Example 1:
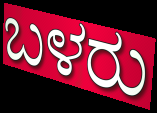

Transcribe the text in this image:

ಬಳರು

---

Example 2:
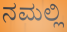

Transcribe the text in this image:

ನಮಲ್ಲಿ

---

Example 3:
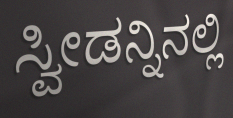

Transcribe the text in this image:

ಸ್ವೀಡನ್ನಿನಲ್ಲಿ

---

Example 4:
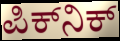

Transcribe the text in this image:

ಪಿಕ್‌ನಿಕ್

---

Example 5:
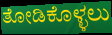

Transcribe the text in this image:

ತೋಡಿಕೊಳ್ಳಲು